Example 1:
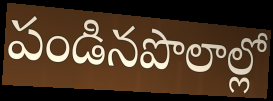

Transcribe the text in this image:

పండినపొలాల్లో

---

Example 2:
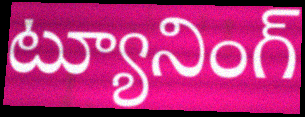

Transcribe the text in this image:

ట్యూనింగ్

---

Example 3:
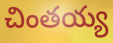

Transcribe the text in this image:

చింతయ్య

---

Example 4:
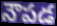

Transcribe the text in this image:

నౌపడ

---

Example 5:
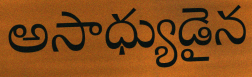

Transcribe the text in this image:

అసాధ్యుడైన